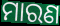
ମାରଣ